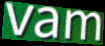
vam